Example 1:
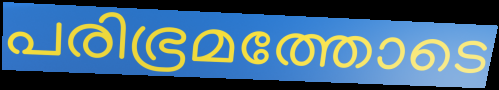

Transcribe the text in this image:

പരിഭ്രമത്തോടെ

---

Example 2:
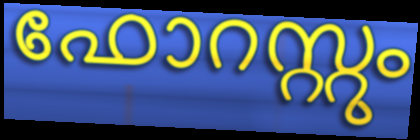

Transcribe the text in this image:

ഫോറസ്റ്റും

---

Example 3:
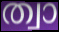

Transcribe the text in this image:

ത്വാ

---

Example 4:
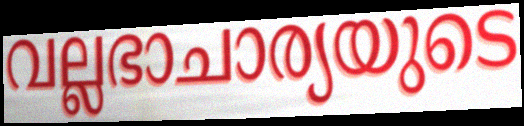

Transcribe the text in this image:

വല്ലഭാചാര്യയുടെ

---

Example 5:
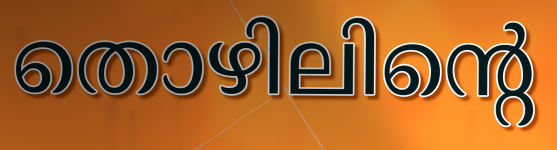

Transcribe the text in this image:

തൊഴിലിന്റെ